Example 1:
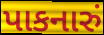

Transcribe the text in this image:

પાકનારું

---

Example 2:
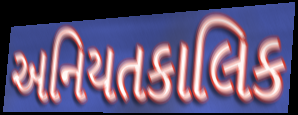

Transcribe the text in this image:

અનિયતકાલિક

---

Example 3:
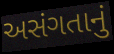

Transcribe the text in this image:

અસંગતાનું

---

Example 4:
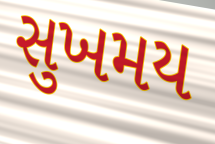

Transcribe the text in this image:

સુખમય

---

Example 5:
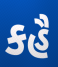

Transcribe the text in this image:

કહૈ